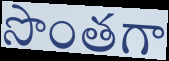
సొంతగా